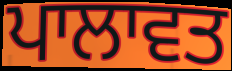
ਪਾਲਾਵਤ